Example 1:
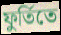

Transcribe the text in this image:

ফুর্তিতে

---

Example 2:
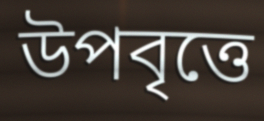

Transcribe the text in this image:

উপবৃত্তে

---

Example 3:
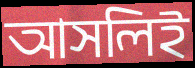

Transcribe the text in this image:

আসলিই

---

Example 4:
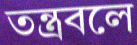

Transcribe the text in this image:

তন্ত্রবলে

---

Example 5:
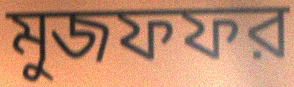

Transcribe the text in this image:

মুজফফর